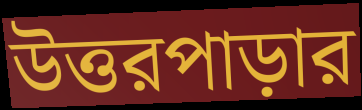
উত্তরপাড়ার